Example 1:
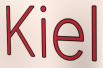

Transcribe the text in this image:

Kiel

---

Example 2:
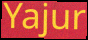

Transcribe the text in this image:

Yajur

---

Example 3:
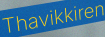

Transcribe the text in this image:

Thavikkiren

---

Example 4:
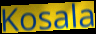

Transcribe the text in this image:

Kosala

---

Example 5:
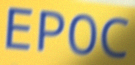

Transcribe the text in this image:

EPOC